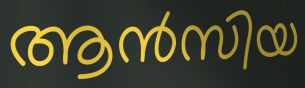
ആൻസിയ